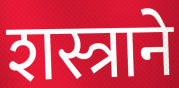
शस्त्राने